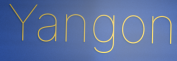
Yangon